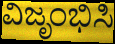
ವಿಜೃಂಭಿಸಿ